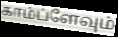
காம்ப்ளேவும்